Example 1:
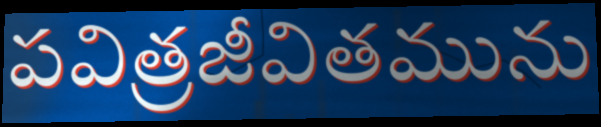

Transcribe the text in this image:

పవిత్రజీవితమును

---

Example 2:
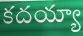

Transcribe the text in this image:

కదయ్యా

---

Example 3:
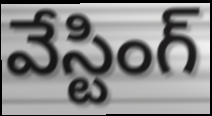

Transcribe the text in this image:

వేస్టింగ్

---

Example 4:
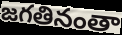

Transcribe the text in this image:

జగతినంతా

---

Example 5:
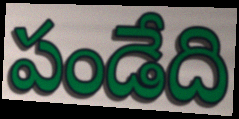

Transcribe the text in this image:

పండేది